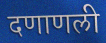
दणाणली